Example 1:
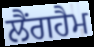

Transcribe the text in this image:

ਲੈਂਗਹੈਮ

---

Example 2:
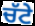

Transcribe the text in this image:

ਚੱਟੇ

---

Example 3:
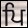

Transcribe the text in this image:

ਪਿ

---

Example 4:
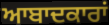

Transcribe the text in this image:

ਆਬਾਦਕਾਰਾਂ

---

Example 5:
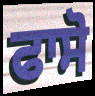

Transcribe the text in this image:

ਫਾਸੋ